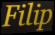
Filip